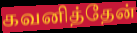
கவனித்தேன்